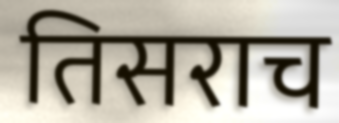
तिसराच